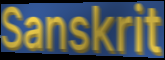
Sanskrit